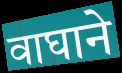
वाघाने